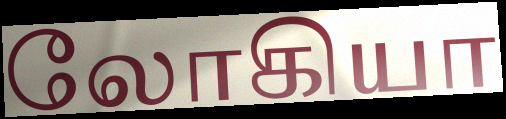
லோகியா